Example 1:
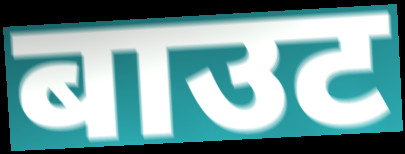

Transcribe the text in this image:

बाउट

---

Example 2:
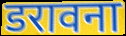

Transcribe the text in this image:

डरावना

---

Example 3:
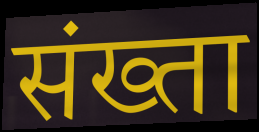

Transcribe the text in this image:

संख्ता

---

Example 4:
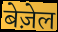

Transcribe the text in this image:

बेज़ेल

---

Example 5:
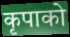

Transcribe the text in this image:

कृपाको